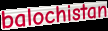
balochistan